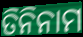
ତିନିନାମ